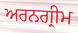
ਅਰਨਗ੍ਰੀਮ